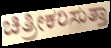
ಚಿತ್ರೀಕರಿಸುತ್ತಾ